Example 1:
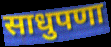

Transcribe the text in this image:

साधुपणा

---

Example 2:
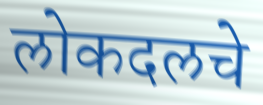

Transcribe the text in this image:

लोकदलचे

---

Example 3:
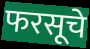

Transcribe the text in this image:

फरसूचे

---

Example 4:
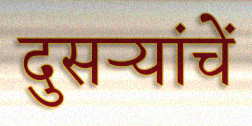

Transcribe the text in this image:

दुसऱ्यांचें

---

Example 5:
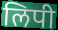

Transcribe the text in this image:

लिपी